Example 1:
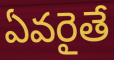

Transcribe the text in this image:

ఏవరైతే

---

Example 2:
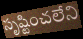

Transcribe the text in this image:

సృష్టించలేని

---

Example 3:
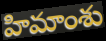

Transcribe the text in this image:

హిమాంశు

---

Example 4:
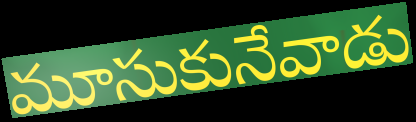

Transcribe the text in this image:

మూసుకునేవాడు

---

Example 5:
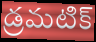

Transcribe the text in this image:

డ్రమటిక్